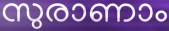
സുരാണാം